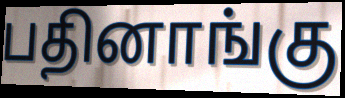
பதினாங்கு